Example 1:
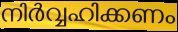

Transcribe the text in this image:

നിർവ്വഹിക്കണം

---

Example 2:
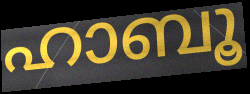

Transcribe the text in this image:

ഹാബൂ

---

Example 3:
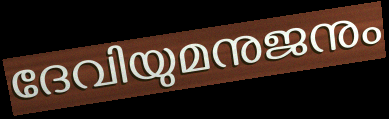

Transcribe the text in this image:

ദേവിയുമനുജനും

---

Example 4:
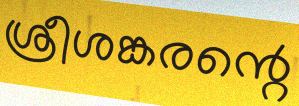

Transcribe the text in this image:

ശ്രീശങ്കരന്റെ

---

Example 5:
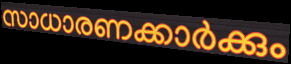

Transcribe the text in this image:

സാധാരണക്കാർക്കും